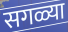
सगळ्या